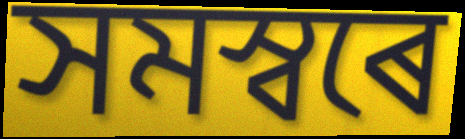
সমস্বৰে